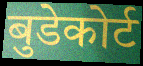
बुडेकोर्ट